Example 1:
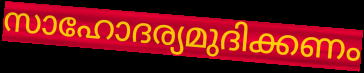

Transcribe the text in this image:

സാഹോദര്യമുദിക്കണം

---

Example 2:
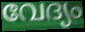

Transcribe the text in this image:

വേദ്യം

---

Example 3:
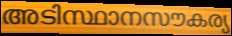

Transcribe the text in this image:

അടിസ്ഥാനസൗകര്യ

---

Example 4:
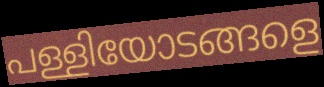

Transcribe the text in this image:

പള്ളിയോടങ്ങളെ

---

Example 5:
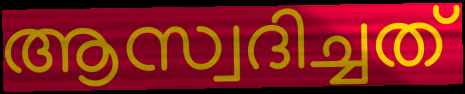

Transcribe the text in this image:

ആസ്വദിച്ചത്